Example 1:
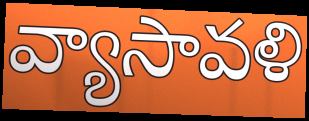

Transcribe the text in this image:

వ్యాసావళి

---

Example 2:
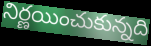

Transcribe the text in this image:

నిర్ణయించుకున్నది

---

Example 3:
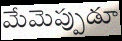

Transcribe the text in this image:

మేమెప్పుడూ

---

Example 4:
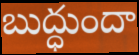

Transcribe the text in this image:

బుద్ధుందా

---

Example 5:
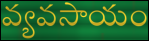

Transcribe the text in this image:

వ్యవసాయం